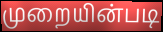
முறையின்படி